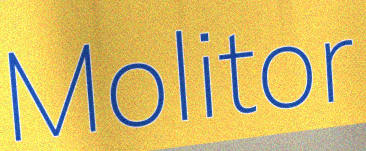
Molitor